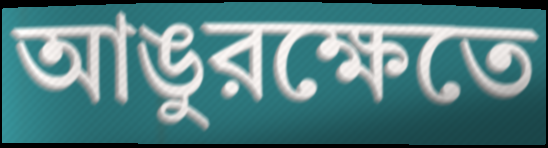
আঙুরক্ষেতে